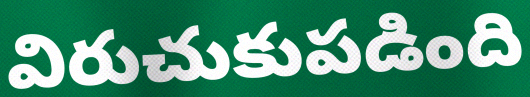
విరుచుకుపడింది